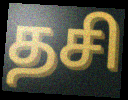
தசி